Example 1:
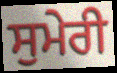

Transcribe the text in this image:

ਸੁਮੇਰੀ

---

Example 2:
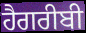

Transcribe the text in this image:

ਹੈਗਰੀਬੀ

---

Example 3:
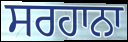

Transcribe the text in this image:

ਸਰਹਾਨਾ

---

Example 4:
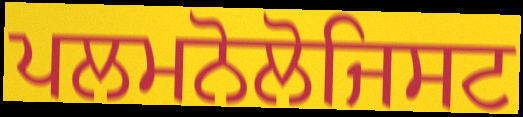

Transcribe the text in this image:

ਪਲਮਨੋਲੋਜਿਸਟ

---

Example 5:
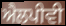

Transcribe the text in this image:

ਐਲਪੀਵੀ